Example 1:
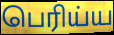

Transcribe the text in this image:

பெரிய்ய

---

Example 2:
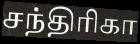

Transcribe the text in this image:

சந்திரிகா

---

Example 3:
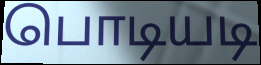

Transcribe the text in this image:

பொடியடி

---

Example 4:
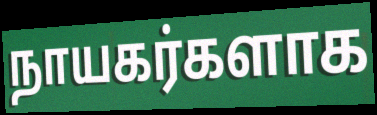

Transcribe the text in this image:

நாயகர்களாக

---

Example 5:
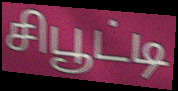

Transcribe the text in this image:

சிபூட்டி